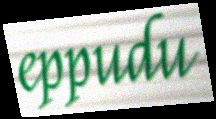
eppudu